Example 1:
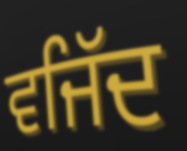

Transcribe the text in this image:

ਵਜਿੱਦ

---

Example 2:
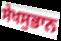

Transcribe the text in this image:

ਸੇਖਸੁਭਾਨ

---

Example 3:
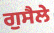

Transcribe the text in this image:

ਗੁਸੈਲੇ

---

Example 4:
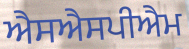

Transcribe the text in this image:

ਐਸਐਸਪੀਐਮ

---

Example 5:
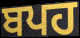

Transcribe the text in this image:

ਬਪਹ